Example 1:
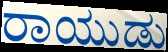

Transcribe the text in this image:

ರಾಯುಡು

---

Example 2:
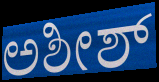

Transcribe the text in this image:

ಅಶೀಶ್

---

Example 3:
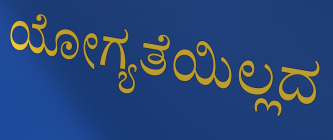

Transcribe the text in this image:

ಯೋಗ್ಯತೆಯಿಲ್ಲದ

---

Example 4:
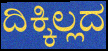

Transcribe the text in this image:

ದಿಕ್ಕಿಲ್ಲದ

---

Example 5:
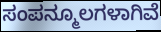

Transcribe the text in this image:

ಸಂಪನ್ಮೂಲಗಳಾಗಿವೆ